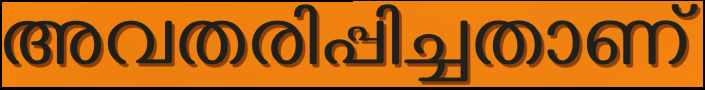
അവതരിപ്പിച്ചതാണ്